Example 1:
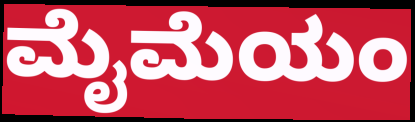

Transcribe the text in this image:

ಮೈಮೆಯಂ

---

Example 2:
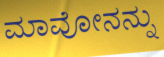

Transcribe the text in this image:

ಮಾವೋನನ್ನು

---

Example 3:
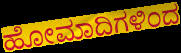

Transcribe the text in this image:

ಹೋಮಾದಿಗಳಿಂದ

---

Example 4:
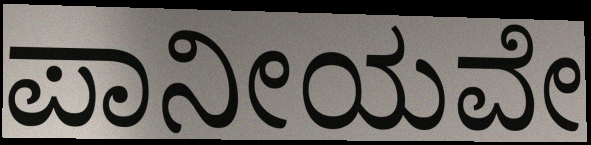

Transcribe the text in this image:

ಪಾನೀಯವೇ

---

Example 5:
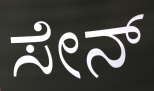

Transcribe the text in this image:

ಸೇನ್